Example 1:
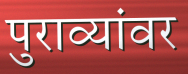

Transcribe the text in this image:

पुराव्यांवर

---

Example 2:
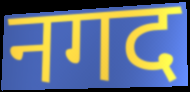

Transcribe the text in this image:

नगद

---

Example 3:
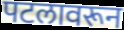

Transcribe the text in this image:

पटलावरून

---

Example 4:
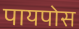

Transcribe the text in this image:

पायपोस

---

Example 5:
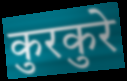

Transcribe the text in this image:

कुरकुरे